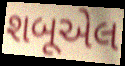
શબૂએલ